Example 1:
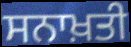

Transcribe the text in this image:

ਸਨਾਖ਼ਤੀ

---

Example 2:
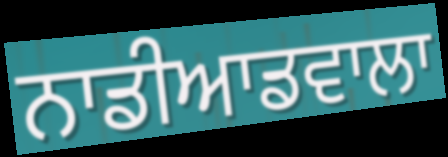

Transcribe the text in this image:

ਨਾਡੀਆਡਵਾਲਾ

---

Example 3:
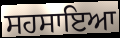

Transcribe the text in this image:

ਸਹਸਾਇਆ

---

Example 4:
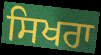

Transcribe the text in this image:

ਸਿਖਰਾ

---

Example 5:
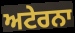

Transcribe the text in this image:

ਅਟੇਰਨਾ